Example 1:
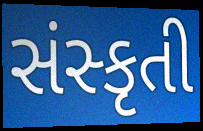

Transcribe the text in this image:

સંસ્કૃતી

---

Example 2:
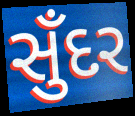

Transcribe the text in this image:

સુઁદર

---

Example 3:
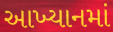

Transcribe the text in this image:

આખ્યાનમાં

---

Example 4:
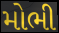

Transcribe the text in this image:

મોભી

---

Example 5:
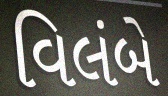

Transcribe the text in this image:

વિલંબે